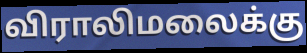
விராலிமலைக்கு